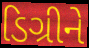
ડિગ્રીને